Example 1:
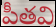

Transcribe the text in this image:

పీతవి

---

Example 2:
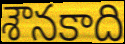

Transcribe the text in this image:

శౌనకాది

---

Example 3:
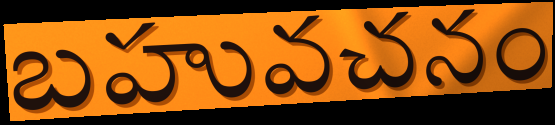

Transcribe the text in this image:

బహువచనం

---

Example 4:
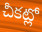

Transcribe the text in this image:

చీకట్లో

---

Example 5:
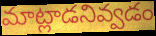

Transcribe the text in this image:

మాట్లాడనివ్వడం